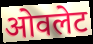
ओवलेट